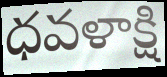
ధవళాక్షి